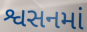
શ્વસનમાં